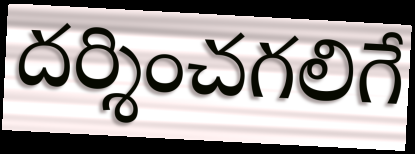
దర్శించగలిగే